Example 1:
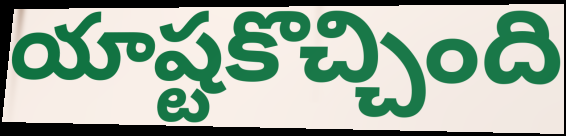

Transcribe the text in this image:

యాష్టకొచ్చింది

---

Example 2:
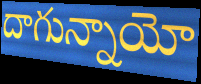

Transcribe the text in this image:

దాగున్నాయో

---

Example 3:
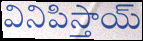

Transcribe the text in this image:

వినిపిస్తాయ్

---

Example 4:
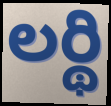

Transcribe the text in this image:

లర్థి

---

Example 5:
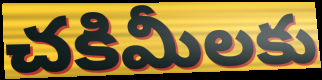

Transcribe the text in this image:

చకిమీలకు